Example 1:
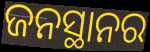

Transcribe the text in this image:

ଜନସ୍ଥାନର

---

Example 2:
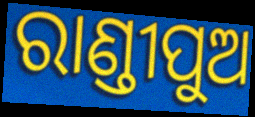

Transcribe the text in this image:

ରାଣ୍ଡୀପୁଅ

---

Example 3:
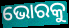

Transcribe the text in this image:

ଭୋରକୁ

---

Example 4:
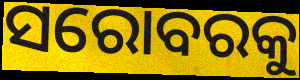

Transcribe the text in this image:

ସରୋବରକୁ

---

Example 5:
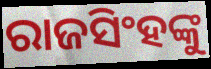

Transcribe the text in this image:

ରାଜସିଂହଙ୍କୁ